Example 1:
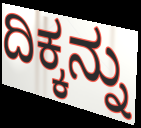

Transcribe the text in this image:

ದಿಕ್ಕನ್ನು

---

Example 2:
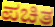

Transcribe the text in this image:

ಪಚಿತ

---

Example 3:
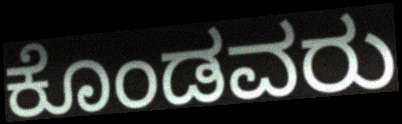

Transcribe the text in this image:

ಕೊಂಡವರು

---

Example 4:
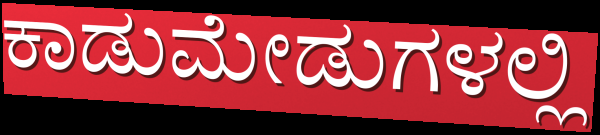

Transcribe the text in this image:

ಕಾಡುಮೇಡುಗಳಲ್ಲಿ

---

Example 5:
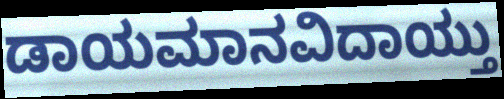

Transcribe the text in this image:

ಡಾಯಮಾನವಿದಾಯ್ತು